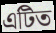
এটিত